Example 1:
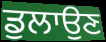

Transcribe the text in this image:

ਡੁਲਾਉਣ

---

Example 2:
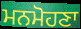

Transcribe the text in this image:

ਮਨਮੋਹਣਾ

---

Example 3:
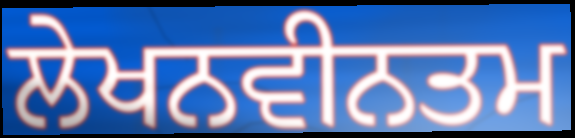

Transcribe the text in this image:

ਲੇਖਨਵੀਨਤਮ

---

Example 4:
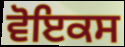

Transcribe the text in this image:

ਵੋਇਕਸ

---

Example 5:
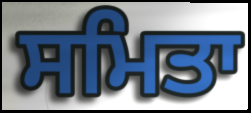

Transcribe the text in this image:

ਸਮਿਤਾ